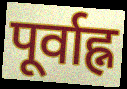
पूर्वाह्न